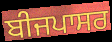
ਬੀਜਪਾਸਰ